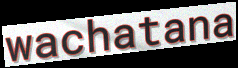
wachatana